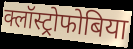
क्लॉस्ट्रोफोबिया